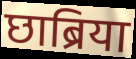
छाब्रिया